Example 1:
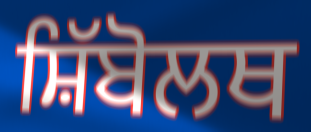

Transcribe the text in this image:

ਸ਼ਿੱਬੋਲਥ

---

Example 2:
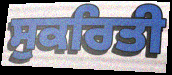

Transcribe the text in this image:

ਸੁਕਰਿਤੀ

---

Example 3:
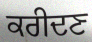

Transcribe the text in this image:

ਕਰੀਦਣ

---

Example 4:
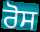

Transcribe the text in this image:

ਰੋਸ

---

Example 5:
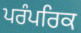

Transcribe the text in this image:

ਪਰੰਪਰਿਕ